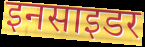
इनसाइडर